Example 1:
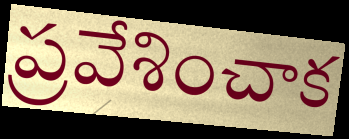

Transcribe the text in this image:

ప్రవేశించాక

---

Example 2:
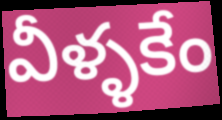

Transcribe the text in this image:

వీళ్ళకేం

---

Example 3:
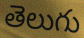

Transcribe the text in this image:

తెలుగు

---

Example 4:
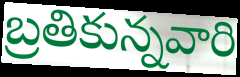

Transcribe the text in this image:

బ్రతికున్నవారి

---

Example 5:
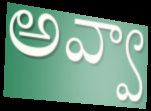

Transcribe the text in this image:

అవ్వా